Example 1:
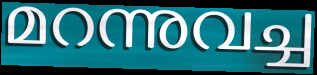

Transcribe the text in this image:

മറന്നുവച്ച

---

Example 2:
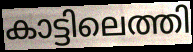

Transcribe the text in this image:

കാട്ടിലെത്തി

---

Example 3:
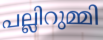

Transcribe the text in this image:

പല്ലിറുമ്മി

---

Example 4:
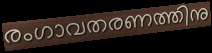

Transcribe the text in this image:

രംഗാവതരണത്തിനു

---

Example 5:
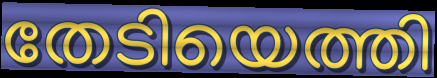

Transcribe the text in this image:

തേടിയെത്തി